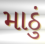
માઠું